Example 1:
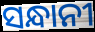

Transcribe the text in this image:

ସନ୍ଧାନୀ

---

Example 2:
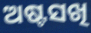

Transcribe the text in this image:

ଅଷ୍ଟସଖି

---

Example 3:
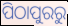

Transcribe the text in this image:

ପିଠାପୁରରୁ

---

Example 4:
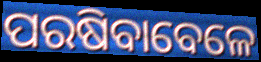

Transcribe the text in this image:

ପରଷିବାବେଳେ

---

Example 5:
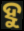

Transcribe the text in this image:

ହୁ